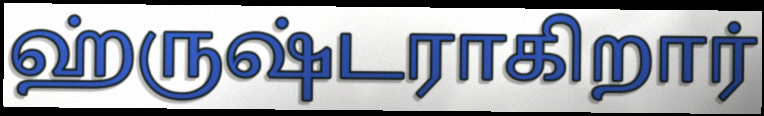
ஹ்ருஷ்டராகிறார்